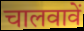
चालवावें